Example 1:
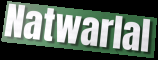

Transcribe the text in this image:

Natwarlal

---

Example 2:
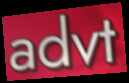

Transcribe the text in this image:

advt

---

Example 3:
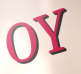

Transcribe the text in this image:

OY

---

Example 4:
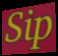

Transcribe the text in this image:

Sip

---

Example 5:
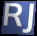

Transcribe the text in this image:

RJ